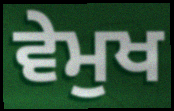
ਵੇਮੁਖ